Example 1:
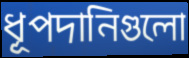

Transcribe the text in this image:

ধূপদানিগুলো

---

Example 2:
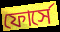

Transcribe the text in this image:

ফোর্সে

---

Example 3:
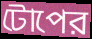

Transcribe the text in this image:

টোপের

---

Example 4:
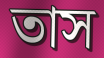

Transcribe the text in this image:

তাস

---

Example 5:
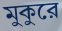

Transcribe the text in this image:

মুকুরে